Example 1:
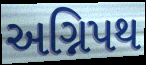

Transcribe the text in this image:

અગ્નિપથ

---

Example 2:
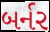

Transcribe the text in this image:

બર્નર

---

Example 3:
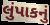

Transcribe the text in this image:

લુંપાકનું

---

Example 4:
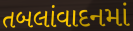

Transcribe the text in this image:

તબલાંવાદનમાં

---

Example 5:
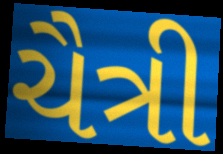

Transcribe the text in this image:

ચૈત્રી